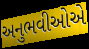
અનુભવીઓએ